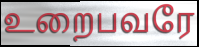
உறைபவரே